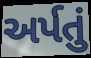
અર્પતું